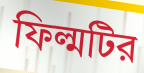
ফিল্মটির